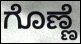
ಗೊಣ್ಣೆ